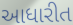
આધારીત